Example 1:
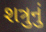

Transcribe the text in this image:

શત્રુનું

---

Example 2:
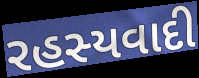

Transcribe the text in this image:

રહસ્યવાદી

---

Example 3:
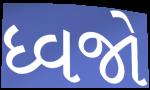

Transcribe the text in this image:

ધ્વજો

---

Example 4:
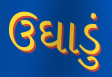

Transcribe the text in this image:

ઉઘાડું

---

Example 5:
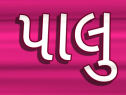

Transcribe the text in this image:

પાલુ